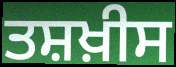
ਤਸ਼ਖ਼ੀਸ